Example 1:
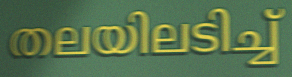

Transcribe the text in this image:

തലയിലടിച്ച്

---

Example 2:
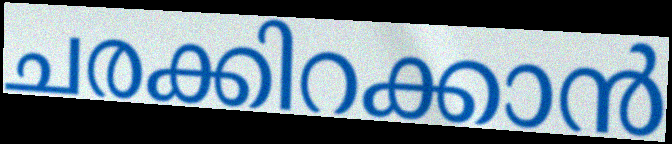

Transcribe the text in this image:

ചരക്കിറക്കാൻ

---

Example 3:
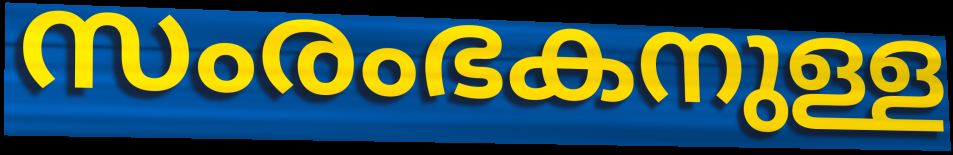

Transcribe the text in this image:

സംരംഭകനുള്ള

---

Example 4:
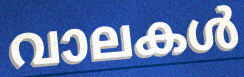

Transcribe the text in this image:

വാലകൾ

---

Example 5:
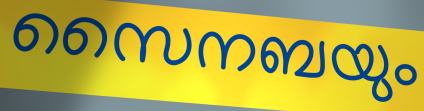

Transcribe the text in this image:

സൈനബയും